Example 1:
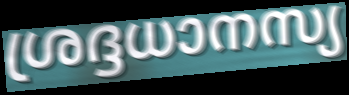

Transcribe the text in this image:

ശ്രദ്ദധാനസ്യ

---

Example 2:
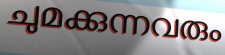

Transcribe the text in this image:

ചുമക്കുന്നവരും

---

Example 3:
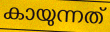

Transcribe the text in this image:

കായുന്നത്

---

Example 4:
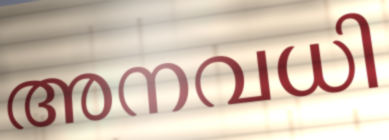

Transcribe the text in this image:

അനവധി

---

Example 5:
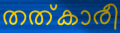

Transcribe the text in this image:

തത്കാരീ